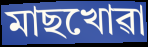
মাছখোৱা